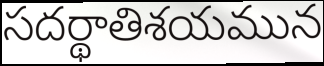
సదర్థాతిశయమున